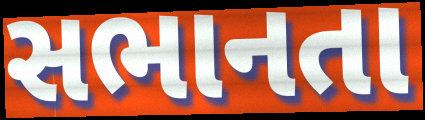
સભાનતા